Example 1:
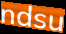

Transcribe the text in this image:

ndsu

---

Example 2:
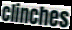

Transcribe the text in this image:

clinches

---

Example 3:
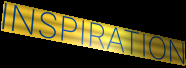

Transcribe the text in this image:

INSPIRATION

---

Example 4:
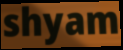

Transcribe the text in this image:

shyam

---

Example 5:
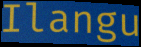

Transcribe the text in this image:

Ilangu